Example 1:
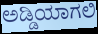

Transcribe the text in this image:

ಅಡ್ಡಿಯಾಗಲಿ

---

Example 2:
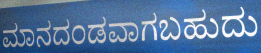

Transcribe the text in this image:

ಮಾನದಂಡವಾಗಬಹುದು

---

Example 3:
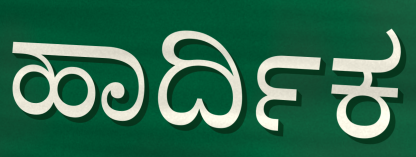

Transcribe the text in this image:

ಹಾರ್ದಿಕ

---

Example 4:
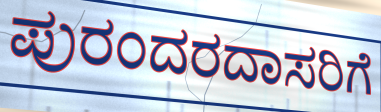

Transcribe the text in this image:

ಪುರಂದರದಾಸರಿಗೆ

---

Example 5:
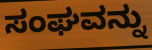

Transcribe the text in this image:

ಸಂಘವನ್ನು